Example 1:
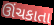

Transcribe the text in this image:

ઊંચકાતા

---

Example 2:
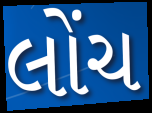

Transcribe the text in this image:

લોંચ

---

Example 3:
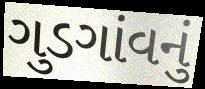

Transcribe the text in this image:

ગુડગાંવનું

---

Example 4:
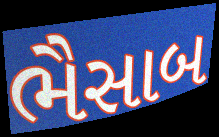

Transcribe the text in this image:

ભૈસાબ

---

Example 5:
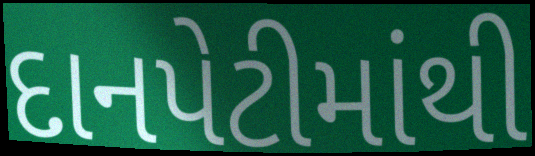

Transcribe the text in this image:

દાનપેટીમાંથી